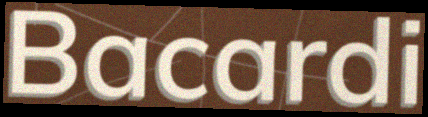
Bacardi